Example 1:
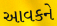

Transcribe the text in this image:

આવકને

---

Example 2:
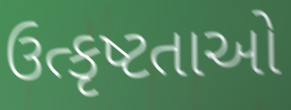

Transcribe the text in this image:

ઉત્કૃષ્ટતાઓ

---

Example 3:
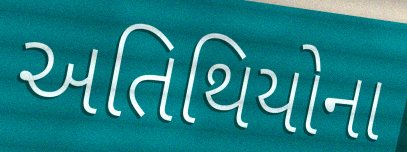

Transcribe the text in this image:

અતિથિયોના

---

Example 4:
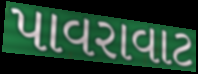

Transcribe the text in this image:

પાવરાવાટ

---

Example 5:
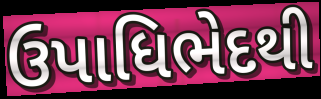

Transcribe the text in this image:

ઉપાધિભેદથી